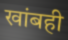
खांबही